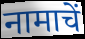
नामाचें